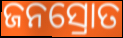
ଜନସ୍ରୋତ